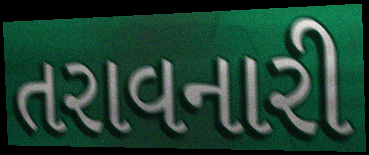
તરાવનારી